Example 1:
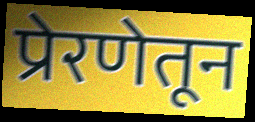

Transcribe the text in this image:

प्रेरणेतून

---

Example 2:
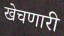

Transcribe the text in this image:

खेचणारी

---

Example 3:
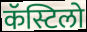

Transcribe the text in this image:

कॅस्टिलो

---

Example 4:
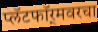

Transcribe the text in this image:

प्लॅटफॉर्मवरचा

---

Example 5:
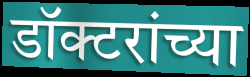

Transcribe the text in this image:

डॉक्‍टरांच्या